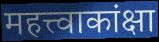
महत्त्वाकांक्षा